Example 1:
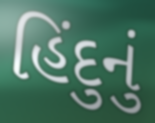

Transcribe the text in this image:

હિંદુનું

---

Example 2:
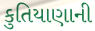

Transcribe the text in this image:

કુતિયાણાની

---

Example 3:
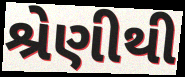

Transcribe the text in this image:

શ્રેણીથી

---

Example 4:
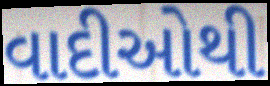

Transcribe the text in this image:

વાદીઓથી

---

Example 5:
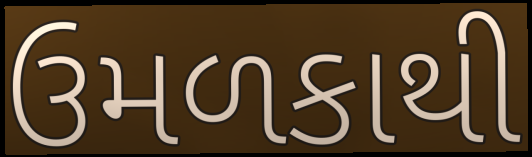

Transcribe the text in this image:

ઉમળકાથી